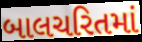
બાલચરિતમાં